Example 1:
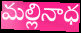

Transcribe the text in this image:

మల్లినాధ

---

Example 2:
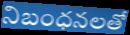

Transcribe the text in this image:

నిబంధనలతో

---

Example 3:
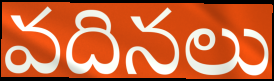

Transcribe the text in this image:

వదినలు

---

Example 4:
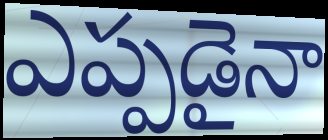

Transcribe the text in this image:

ఎప్పడైనా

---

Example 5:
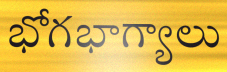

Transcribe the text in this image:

భోగభాగ్యాలు